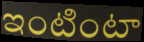
ఇంటింటా